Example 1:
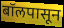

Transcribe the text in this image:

बॉलपासून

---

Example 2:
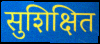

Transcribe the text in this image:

सुशिक्षित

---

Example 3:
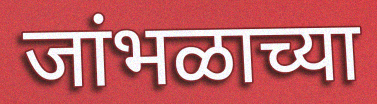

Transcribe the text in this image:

जांभळाच्या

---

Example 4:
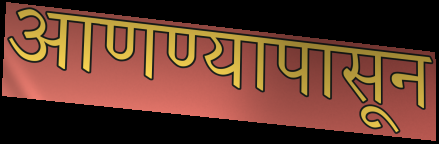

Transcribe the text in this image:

आणण्यापासून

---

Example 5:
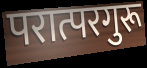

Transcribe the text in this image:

परात्परगुरू